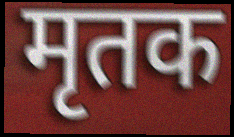
मृतक